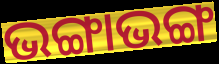
ଭଙ୍ଗାଭଙ୍ଗ